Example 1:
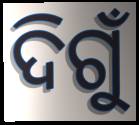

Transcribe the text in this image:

ଦିଗୁଁ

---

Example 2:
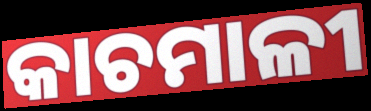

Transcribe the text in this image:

କାଚମାଳୀ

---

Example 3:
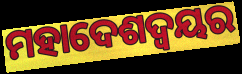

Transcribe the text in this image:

ମହାଦେଶଦ୍ଵୟର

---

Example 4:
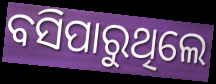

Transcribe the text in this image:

ବସିପାରୁଥିଲେ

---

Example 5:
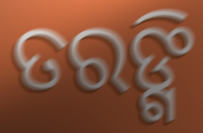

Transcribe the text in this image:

ତରଙ୍ଗି